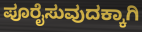
ಪೂರೈಸುವುದಕ್ಕಾಗಿ